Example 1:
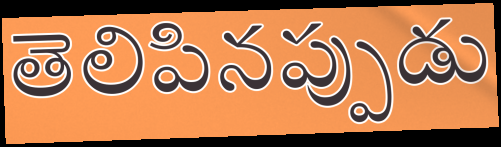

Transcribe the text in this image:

తెలిపినప్పుడు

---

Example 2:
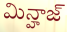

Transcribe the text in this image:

మిన్హాజ్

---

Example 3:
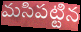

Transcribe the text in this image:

మసిపట్టిన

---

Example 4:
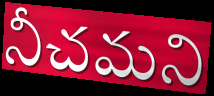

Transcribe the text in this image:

నీచమని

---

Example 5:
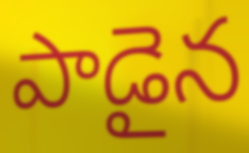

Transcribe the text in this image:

పాడైన